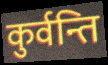
कुर्वन्ति